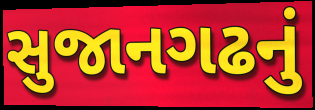
સુજાનગઢનું